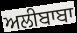
ਅਲੀਬਾਬਾ